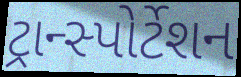
ટ્રાન્સ્પોર્ટેશન